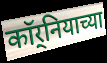
कॉर्नियाच्या